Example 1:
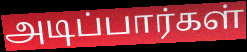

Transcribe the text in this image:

அடிப்பார்கள்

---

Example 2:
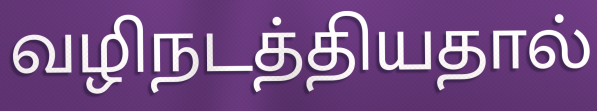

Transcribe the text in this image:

வழிநடத்தியதால்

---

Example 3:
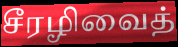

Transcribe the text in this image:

சீரழிவைத்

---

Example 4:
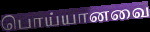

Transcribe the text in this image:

பொய்யானவை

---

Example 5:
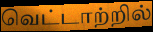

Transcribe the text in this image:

வெட்டாற்றில்